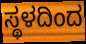
ಸ್ಥಳದಿಂದ